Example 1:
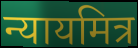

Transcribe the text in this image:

न्यायमित्र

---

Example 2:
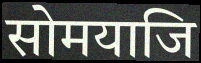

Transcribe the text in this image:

सोमयाजि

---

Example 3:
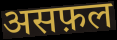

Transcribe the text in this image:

असफ़ल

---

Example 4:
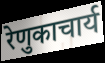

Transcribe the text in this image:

रेणुकाचार्य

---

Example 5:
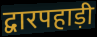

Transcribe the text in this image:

द्वारपहाड़ी